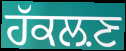
ਹੱਕਲ਼ਣ